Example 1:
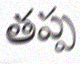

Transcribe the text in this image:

తప్ప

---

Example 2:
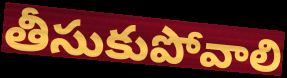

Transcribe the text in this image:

తీసుకుపోవాలి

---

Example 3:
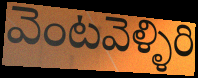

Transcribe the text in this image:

వెంటవెళ్ళిరి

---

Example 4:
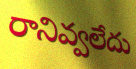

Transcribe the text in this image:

రానివ్వలేదు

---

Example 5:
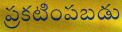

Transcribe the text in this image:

ప్రకటింపబడు